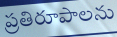
ప్రతిరూపాలను